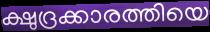
ക്ഷുദ്രക്കാരത്തിയെ